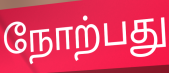
நோற்பது